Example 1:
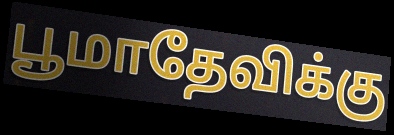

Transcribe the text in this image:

பூமாதேவிக்கு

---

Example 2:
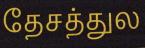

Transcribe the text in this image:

தேசத்துல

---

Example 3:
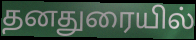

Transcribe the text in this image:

தனதுரையில்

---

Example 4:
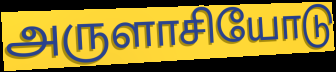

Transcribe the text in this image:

அருளாசியோடு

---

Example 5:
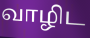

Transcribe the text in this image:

வாழிட